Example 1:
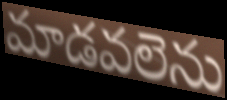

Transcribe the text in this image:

మాడవలెను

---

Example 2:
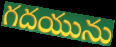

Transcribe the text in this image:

గదయును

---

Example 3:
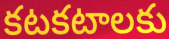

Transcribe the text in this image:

కటకటాలకు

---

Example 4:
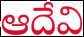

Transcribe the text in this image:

ఆదేవి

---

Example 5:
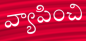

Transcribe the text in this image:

వ్యాపించి